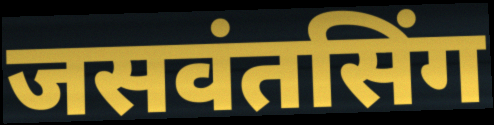
जसवंतसिंग